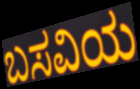
ಬಸವಿಯ